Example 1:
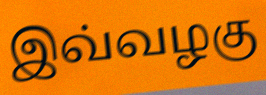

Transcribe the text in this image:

இவ்வழகு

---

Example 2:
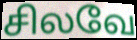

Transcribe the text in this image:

சிலவே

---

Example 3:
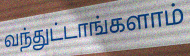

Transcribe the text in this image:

வந்துட்டாங்களாம்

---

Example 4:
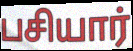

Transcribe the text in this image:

பசியார்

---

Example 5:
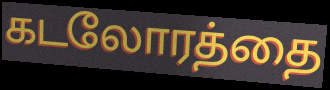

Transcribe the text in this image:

கடலோரத்தை